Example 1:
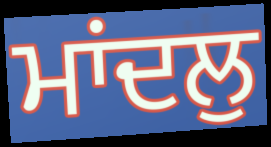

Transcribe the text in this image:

ਮਾਂਦਲੁ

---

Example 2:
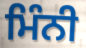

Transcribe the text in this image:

ਮਿੰਨੀ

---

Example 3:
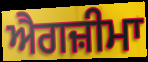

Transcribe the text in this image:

ਐਗਜ਼ੀਮਾ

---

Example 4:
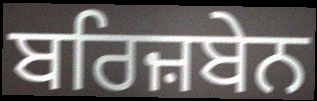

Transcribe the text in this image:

ਬਰਿਜ਼ਬੇਨ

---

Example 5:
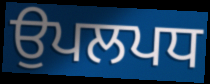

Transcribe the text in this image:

ਉਪਲਪਧ